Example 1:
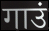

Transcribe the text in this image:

गाउं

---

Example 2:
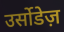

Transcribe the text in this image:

उर्सोडेज़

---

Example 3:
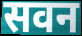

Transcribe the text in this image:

सवन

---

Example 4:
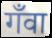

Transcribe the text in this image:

गँवा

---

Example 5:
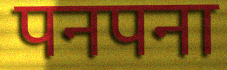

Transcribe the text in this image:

पनपना